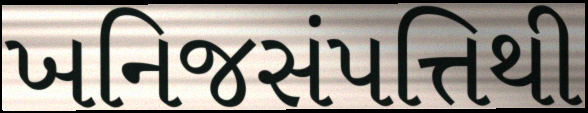
ખનિજસંપત્તિથી